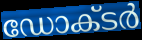
ഡോക്‌ടർ